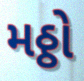
મઠ્ઠો